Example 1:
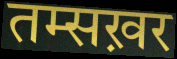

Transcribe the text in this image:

तम्सख़र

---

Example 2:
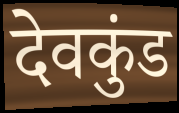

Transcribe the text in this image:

देवकुंड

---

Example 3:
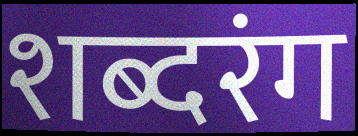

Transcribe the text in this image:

शब्दरंग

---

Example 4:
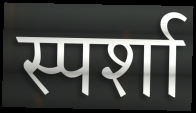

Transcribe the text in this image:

स्पर्शा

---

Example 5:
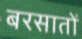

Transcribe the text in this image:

बरसातों